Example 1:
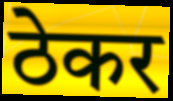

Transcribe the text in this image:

ठेकर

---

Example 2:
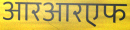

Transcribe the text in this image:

आरआरएफ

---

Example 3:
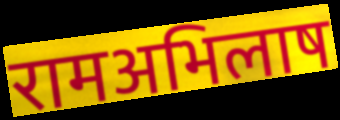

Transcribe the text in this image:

रामअभिलाष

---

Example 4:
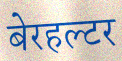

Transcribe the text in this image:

बेरहल्टर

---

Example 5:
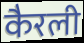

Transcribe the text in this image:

कैरली